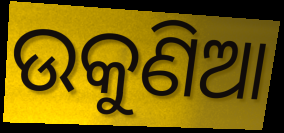
ଉକୁଣିଆ